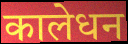
कालेधन